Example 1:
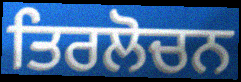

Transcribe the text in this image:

ਤਿਰਲੋਚਨ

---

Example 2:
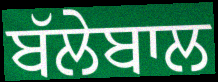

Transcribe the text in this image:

ਬੱਲੇਬਾਲ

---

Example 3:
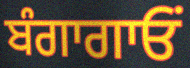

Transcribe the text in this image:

ਬੰਗਾਗਾਓਂ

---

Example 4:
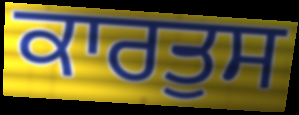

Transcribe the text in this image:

ਕਾਰਤੁਸ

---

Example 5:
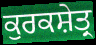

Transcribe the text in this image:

ਕੁਰਕਸ਼ੇਤ੍ਰ